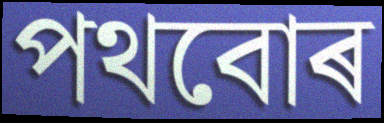
পথবোৰ